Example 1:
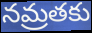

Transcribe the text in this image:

నమ్రతకు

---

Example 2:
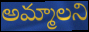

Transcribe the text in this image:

అమ్మాలని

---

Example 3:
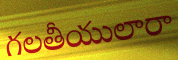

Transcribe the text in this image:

గలతీయులారా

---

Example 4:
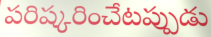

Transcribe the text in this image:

పరిష్కరించేటప్పుడు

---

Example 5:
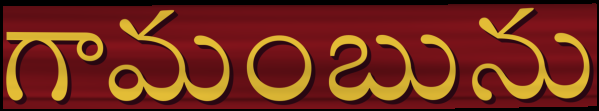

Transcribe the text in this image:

గామంబును